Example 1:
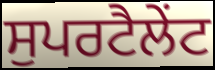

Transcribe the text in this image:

ਸੁਪਰਟੈਲੇਂਟ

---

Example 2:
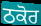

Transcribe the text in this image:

ਠਕੋਰ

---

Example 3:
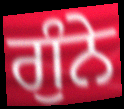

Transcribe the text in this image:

ਗੁੰਨੇ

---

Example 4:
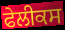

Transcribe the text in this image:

ਫੇਲੀਕਸ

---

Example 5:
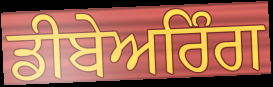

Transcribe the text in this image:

ਡੀਬੇਅਰਿੰਗ